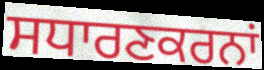
ਸਧਾਰਣਕਰਨਾਂ